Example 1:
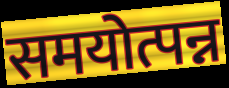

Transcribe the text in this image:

समयोत्पन्न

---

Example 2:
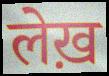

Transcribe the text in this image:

लेख़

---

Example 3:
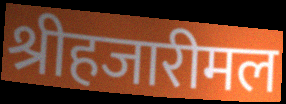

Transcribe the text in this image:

श्रीहजारीमल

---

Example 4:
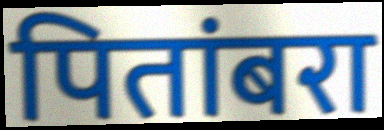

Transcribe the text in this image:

पितांबरा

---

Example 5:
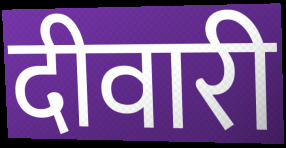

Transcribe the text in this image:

दीवारी